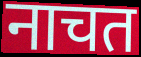
नाचत